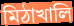
মিঠাখালি